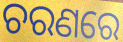
ଚରଣରେ